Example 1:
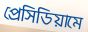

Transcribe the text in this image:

প্রেসিডিয়ামে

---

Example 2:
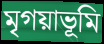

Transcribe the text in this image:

মৃগয়াভূমি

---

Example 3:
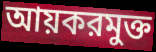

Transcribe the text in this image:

আয়করমুক্ত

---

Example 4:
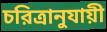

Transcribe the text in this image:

চরিত্রানুযায়ী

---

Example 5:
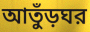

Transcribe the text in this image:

আতুঁড়ঘর